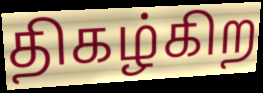
திகழ்கிற